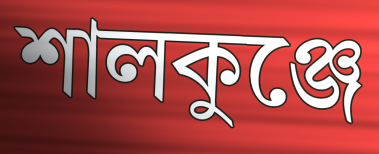
শালকুঞ্জে